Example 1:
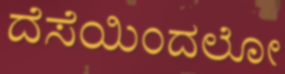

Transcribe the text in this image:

ದೆಸೆಯಿಂದಲೋ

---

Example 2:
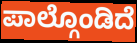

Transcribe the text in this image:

ಪಾಲ್ಗೊಂಡಿದೆ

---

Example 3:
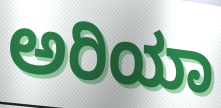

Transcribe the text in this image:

ಅರಿಯಾ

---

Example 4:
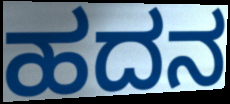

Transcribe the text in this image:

ಹದನ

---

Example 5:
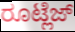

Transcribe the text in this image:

ರೂಟ್ಲೆಜ್